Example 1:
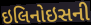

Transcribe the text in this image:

ઇલિનોઇસની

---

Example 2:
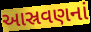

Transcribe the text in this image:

આસ્રવણનાં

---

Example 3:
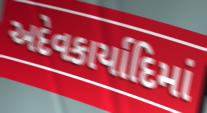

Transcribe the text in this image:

અદેવકાર્યાદિમાં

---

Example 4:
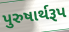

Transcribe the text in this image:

પુરુષાર્થરૂપ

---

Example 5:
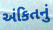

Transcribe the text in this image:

અંકિતનું